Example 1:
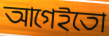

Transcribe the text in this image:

আগেইতো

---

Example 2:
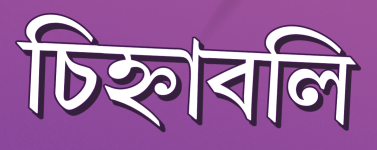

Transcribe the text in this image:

চিহ্নাবলি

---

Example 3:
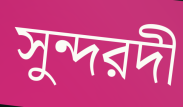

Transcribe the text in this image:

সুন্দরদী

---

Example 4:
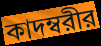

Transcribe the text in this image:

কাদম্বরীর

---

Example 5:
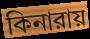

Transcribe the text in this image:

কিনারায়